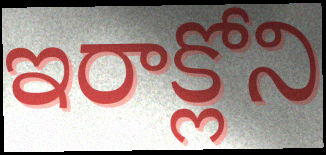
ఇరాక్లోని